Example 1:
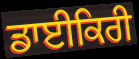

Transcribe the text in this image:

ਡਾਈਕਿਰੀ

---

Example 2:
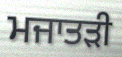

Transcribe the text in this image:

ਮਜਾਤੜੀ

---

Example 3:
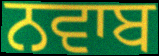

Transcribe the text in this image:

ਨਵਾਬ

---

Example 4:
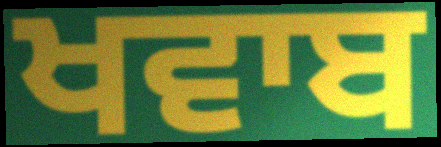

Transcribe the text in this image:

ਖਵਾਬ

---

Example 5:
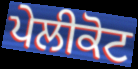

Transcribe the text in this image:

ਪੇਲੀਕੋਟ